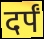
दर्पं